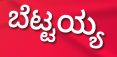
ಬೆಟ್ಟಯ್ಯ